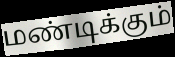
மண்டிக்கும்